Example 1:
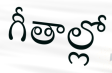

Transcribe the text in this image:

గీతాల్లో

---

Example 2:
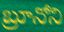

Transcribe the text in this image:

బ్రూనోని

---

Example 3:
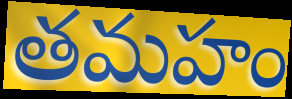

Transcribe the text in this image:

తమహం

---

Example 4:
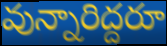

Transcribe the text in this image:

వున్నారిద్దరూ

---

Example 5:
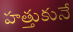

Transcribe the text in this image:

హత్తుకునే